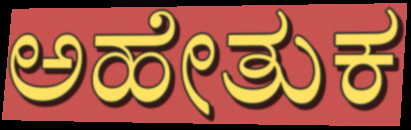
ಅಹೇತುಕ